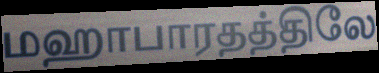
மஹாபாரதத்திலே